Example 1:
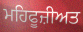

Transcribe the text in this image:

ਮਹਿਫੂਜ਼ੀਅਤ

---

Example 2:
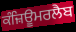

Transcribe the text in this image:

ਕੰਜ਼ਿਊਮਰਲੈਬ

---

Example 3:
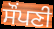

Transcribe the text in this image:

ਸੌਂਪਣੀ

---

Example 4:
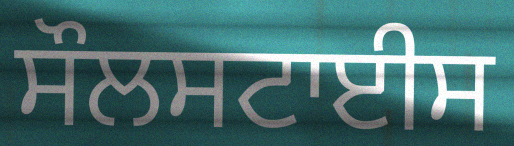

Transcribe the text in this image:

ਸੌਲਸਟਾਈਸ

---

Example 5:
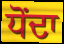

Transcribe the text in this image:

ਧੋਂਦਾ